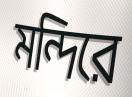
মন্দিরে